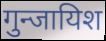
गुन्जायिश